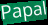
Papal